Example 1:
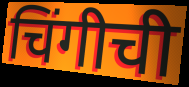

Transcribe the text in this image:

चिंगीची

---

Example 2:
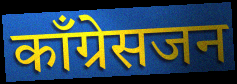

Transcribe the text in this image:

काँग्रेसजन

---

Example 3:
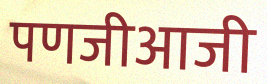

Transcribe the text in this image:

पणजीआजी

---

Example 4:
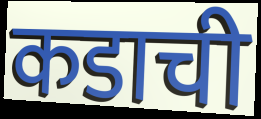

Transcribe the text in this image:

कडाची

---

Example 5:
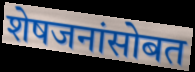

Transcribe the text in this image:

शेषजनांसोबत